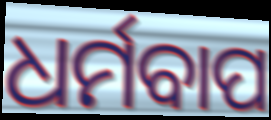
ଧର୍ମବାପ